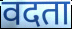
वदता